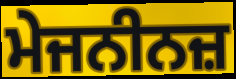
ਮੇਜਨੀਨਜ਼